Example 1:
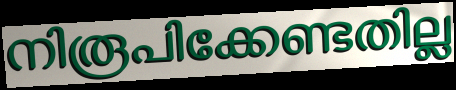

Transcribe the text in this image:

നിരൂപിക്കേണ്ടതില്ല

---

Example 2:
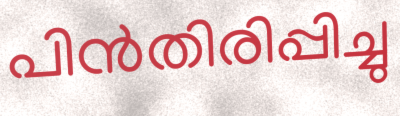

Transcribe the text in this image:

പിൻതിരിപ്പിച്ചു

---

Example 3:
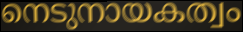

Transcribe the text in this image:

നെടുനായകത്വം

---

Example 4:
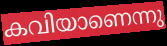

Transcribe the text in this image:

കവിയാണെന്നു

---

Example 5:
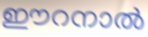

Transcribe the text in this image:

ഈറനാൽ